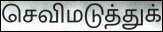
செவிமடுத்துக்